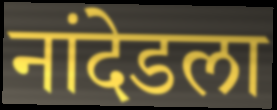
नांदेडला